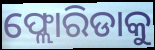
ଫ୍ଲୋରିଡାକୁ